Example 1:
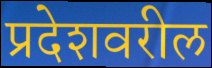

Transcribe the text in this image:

प्रदेशवरील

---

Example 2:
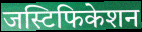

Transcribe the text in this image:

जस्टिफिकेशन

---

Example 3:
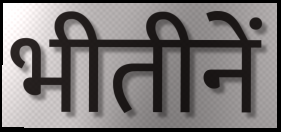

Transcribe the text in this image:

भीतीनें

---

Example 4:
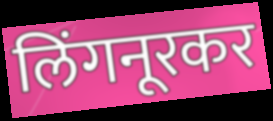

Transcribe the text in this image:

लिंगनूरकर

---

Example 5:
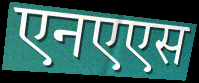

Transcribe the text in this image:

एनएएस